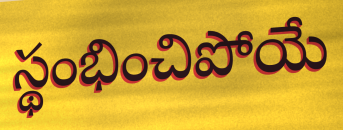
స్థంభించిపోయే